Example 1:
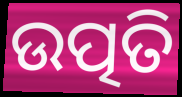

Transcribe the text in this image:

ଉତ୍ପତି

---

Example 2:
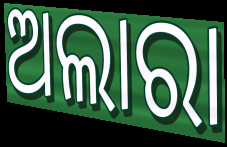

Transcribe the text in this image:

ଅଲାରା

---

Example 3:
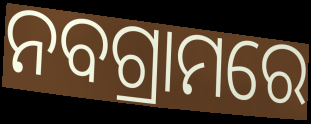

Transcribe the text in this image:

ନବଗ୍ରାମରେ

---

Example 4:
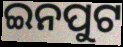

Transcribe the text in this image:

ଇନପୁଟ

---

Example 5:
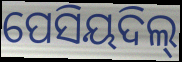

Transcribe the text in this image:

ପେସିୟଦିଲ୍